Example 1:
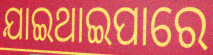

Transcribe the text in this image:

ଯାଇଥାଇପାରେ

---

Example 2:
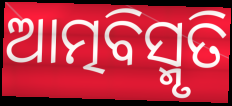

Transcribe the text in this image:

ଆତ୍ମବିସ୍ମୃତି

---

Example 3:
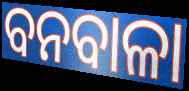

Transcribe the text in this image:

ବନବାଳା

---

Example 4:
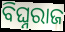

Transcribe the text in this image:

ବିଘ୍ନରାଜ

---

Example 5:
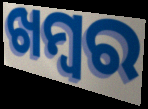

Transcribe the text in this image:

ଖମ୍ୱର